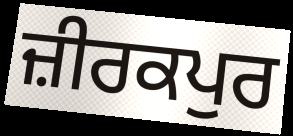
ਜ਼ੀਰਕਪੁਰ